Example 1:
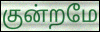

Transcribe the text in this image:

குன்றமே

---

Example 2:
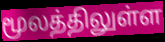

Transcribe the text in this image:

மூலத்திலுள்ள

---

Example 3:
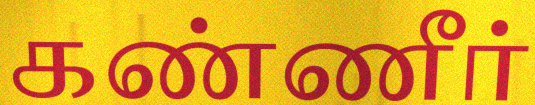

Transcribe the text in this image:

கண்ணீர்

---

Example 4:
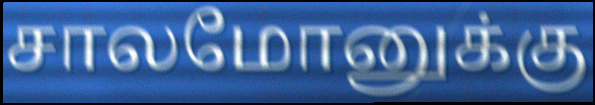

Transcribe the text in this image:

சாலமோனுக்கு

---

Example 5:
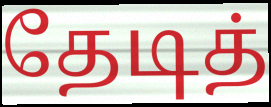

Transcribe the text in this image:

தேடித்